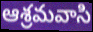
ఆశ్రమవాసి